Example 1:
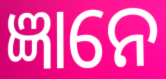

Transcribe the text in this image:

ଜ୍ଞାନେ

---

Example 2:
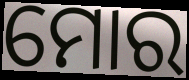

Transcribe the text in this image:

ମୋର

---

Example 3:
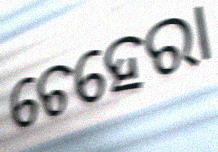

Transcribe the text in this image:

ଚେହେରା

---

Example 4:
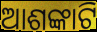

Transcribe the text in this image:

ଆଶଙ୍କାଟି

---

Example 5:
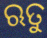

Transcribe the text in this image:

ଋତୁ